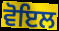
ਵੋਇਲ